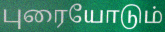
புரையோடும்